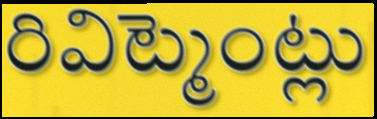
రివిట్మెంట్లు